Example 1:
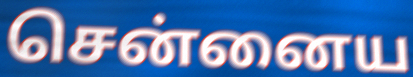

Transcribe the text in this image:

சென்னைய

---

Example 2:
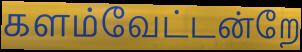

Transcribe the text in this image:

களம்வேட்டன்றே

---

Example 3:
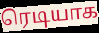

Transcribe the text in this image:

ரெடியாக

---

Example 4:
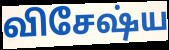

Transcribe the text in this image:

விசேஷ்ய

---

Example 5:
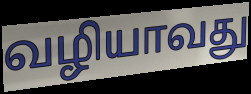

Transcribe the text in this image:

வழியாவது